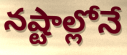
నష్టాల్లోనే